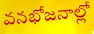
వనభోజనాల్లో